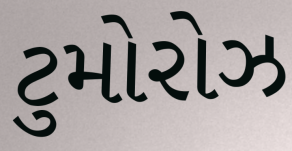
ટુમોરોઝ